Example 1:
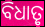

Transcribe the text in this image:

ବିଧାତୃ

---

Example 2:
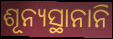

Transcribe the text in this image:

ଶୂନ୍ୟସ୍ଥାନାନି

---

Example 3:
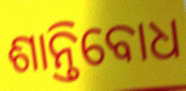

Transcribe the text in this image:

ଶାନ୍ତିବୋଧ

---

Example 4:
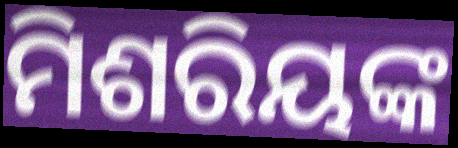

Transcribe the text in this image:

ମିଶରିୟଙ୍କ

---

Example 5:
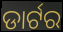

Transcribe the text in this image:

ଡାର୍ଟର